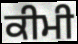
ਕੀਮੀ